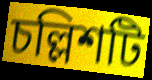
চল্লিশটি